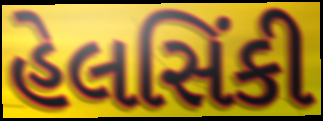
હેલસિંકી